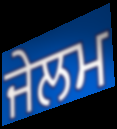
ਜੇਲਮ